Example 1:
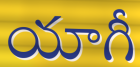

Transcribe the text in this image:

యాగీ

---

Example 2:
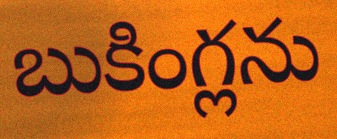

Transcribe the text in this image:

బుకింగ్లను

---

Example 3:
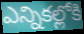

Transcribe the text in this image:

ఎన్నికల్లోకి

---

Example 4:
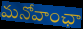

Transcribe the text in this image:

మనోవాంఛా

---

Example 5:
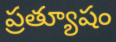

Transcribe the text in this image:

ప్రత్యూషం